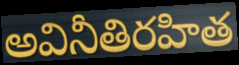
అవినీతిరహిత